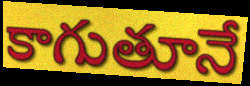
కాగుతూనే